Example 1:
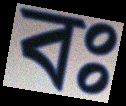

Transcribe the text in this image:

বঃ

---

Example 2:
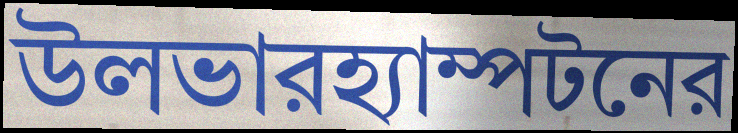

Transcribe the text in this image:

উলভারহ্যাম্পটনের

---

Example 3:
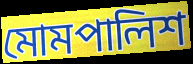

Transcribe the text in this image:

মোমপালিশ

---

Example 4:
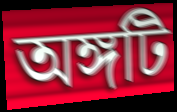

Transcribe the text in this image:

অঙ্গটি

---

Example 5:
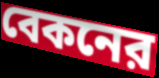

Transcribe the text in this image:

বেকনের